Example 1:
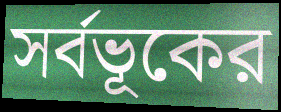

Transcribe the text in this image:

সর্বভূকের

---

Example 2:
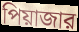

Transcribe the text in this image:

পিয়াজার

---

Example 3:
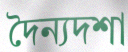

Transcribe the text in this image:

দৈন্যদশা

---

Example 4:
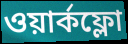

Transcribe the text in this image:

ওয়ার্কফ্লো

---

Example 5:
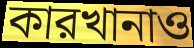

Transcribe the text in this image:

কারখানাও